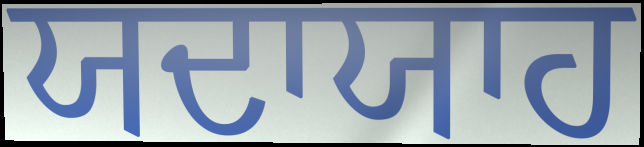
ਯਦਾਯਾਹ